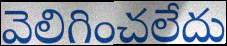
వెలిగించలేదు